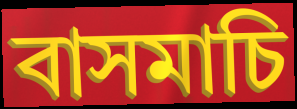
বাসমাচি